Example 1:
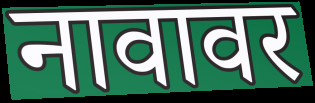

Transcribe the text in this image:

नावावर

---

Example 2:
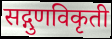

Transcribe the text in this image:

सद्गुणविकृती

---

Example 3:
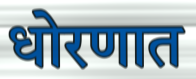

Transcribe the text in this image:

धोरणात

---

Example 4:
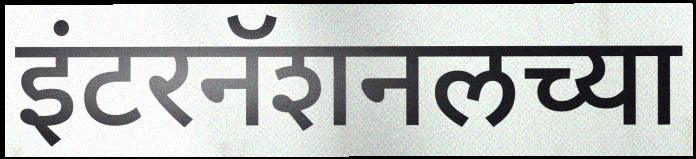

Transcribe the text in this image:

इंटरनॅशनलच्या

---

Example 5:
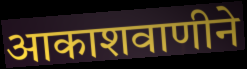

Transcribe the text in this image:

आकाशवाणीने